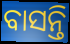
ବାସନ୍ତି